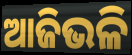
ଆଜିଭଳି